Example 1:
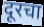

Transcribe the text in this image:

दूरचा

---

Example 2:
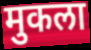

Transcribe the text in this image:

मुकला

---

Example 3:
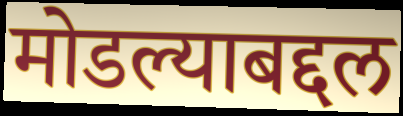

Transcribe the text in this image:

मोडल्याबद्दल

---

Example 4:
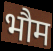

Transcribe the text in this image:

भौम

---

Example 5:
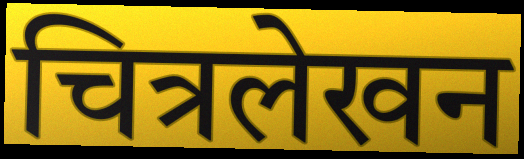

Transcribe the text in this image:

चित्रलेखन